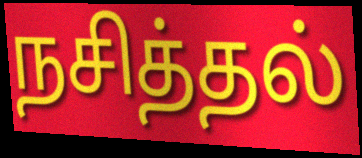
நசித்தல்